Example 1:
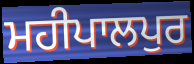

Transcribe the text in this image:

ਮਹੀਪਾਲਪੁਰ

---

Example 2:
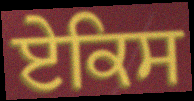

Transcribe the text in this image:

ਏਕਿਸ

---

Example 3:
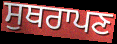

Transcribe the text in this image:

ਸੁਥਰਾਪਣ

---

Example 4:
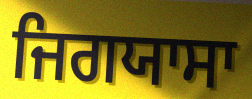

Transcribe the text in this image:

ਜਿਗਯਾਸਾ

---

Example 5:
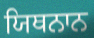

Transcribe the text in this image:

ਯਿਥਨਾਨ